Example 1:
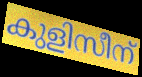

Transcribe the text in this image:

കുളിസീന്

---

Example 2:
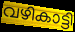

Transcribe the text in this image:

വഴികാട്ടി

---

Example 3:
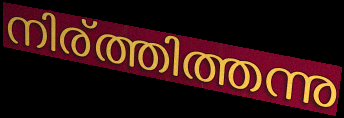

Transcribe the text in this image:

നിര്ത്തിത്തന്നു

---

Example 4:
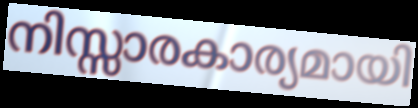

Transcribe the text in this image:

നിസ്സാരകാര്യമായി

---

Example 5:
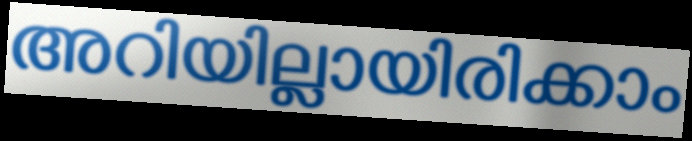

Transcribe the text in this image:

അറിയില്ലായിരിക്കാം